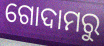
ଗୋଦାମରୁ